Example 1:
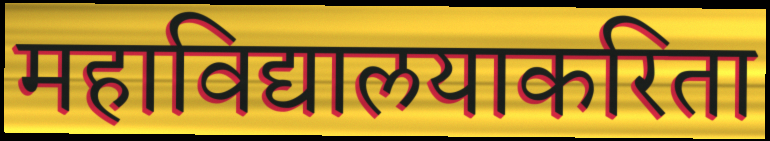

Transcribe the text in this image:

महाविद्यालयाकरिता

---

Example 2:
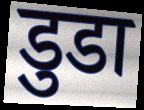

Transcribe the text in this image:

डुडा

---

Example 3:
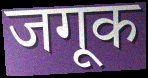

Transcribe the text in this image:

जगूक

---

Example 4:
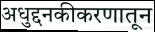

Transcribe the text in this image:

अधुद्दनकीकरणातून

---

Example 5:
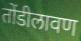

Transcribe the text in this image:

तोंडीलावण